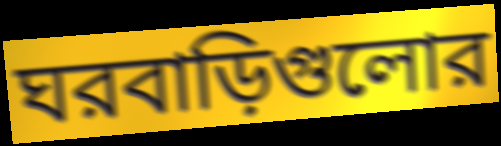
ঘরবাড়িগুলোর